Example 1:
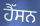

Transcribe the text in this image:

ਹੈੱਸਨ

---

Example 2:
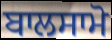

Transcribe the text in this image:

ਬਾਲਸਾਮੋ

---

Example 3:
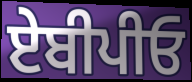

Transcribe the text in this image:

ਏਬੀਪੀਓ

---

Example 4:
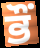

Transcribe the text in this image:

ਭੌਂ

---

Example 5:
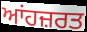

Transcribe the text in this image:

ਆਂਹਜ਼ਰਤ